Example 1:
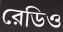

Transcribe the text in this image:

রেডিও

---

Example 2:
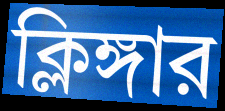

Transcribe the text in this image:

ক্লিঙ্গার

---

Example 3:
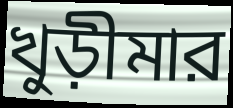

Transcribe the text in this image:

খুড়ীমার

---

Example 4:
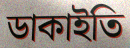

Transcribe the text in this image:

ডাকাইতি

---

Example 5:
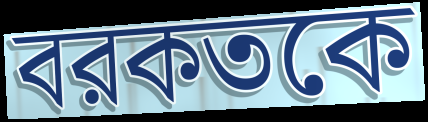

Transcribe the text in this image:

বরকতকে